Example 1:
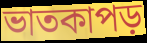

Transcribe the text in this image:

ভাতকাপড়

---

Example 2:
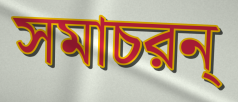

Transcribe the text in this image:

সমাচরন্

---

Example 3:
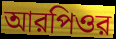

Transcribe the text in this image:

আরপিওর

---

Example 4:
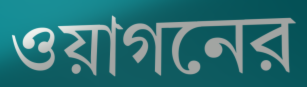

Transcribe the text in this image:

ওয়াগনের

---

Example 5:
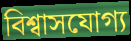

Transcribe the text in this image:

বিশ্বাসযোগ্য